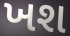
ખશ